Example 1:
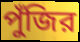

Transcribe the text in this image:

পুঁজির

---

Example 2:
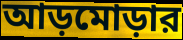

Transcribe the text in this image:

আড়মোড়ার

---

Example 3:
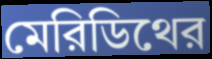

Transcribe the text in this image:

মেরিডিথের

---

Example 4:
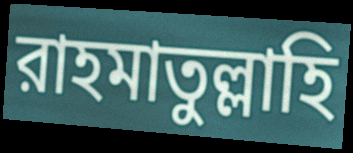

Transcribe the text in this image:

রাহমাতুল্লাহি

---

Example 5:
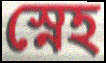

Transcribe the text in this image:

স্নেহ